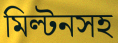
মিল্টনসহ